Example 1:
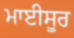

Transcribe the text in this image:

ਮਾਈਸੂਰ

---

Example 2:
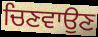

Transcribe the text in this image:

ਚਿਣਵਾਉਣ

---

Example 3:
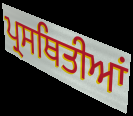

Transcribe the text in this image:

ਪ੍ਰਸਥਿਤੀਆਂ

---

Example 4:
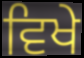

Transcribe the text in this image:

ਵਿਖੇ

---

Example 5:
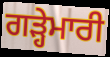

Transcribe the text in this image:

ਗੜ੍ਹੇਮਾਰੀ